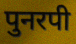
पुनरपी